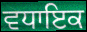
ਵਧਾਇਕ